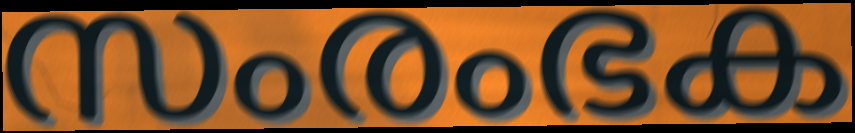
സംരംഭക